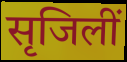
सृजिलीं